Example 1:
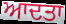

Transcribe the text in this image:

ਆਦਤਾ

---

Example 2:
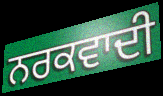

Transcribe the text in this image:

ਨਰਕਵਾਦੀ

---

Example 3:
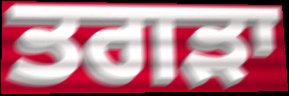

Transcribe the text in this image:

ਤਗੜਾ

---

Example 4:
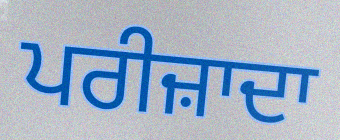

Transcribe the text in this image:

ਪਰੀਜ਼ਾਦਾ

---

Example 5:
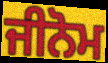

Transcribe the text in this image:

ਜੀਨੋਮ